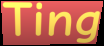
Ting